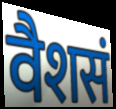
वैशसं